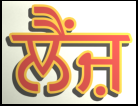
ਲੈਂਜ਼